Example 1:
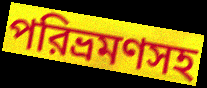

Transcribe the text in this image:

পরিভ্রমণসহ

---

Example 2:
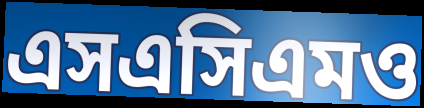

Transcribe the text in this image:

এসএসিএমও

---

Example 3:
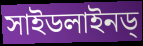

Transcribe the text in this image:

সাইডলাইনড্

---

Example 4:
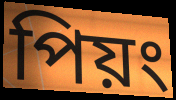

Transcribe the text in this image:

পিয়ং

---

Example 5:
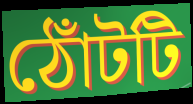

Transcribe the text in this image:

ঠোঁটটি